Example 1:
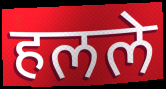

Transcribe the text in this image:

हलले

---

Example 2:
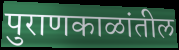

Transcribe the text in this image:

पुराणकाळांतील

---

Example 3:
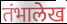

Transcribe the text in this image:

तंभालेख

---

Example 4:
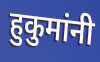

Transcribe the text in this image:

हुकुमांनी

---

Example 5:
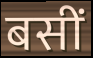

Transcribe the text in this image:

बसीं